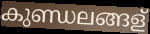
കുണ്ഡലങ്ങള്